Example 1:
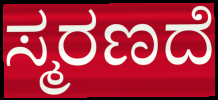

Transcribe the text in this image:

ಸ್ಮರಣದೆ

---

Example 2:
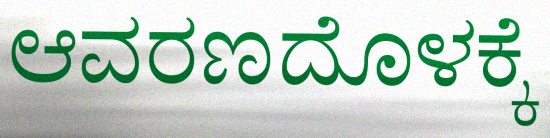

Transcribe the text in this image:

ಆವರಣದೊಳಕ್ಕೆ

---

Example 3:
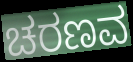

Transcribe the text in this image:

ಚರಣವ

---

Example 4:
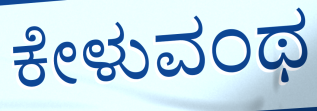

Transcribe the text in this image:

ಕೇಳುವಂಥ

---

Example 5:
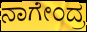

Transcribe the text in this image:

ನಾಗೇಂದ್ರ